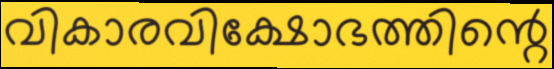
വികാരവിക്ഷോഭത്തിന്റെ